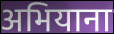
अभियाना